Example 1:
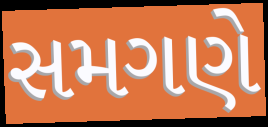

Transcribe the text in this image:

સમગણે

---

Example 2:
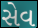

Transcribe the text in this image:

સેવ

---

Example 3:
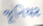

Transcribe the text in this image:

જૂનિયર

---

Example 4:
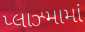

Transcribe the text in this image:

પ્લાઝ્મામાં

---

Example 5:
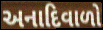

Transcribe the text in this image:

અનાદિવાળો